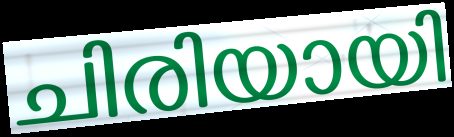
ചിരിയായി